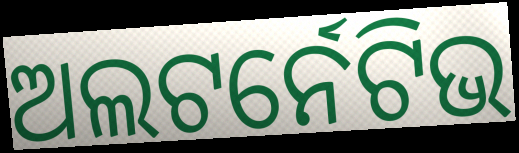
ଅଲଟର୍ନେଟିଭ